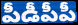
పీడీపీపీ